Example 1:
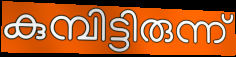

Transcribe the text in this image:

കുമ്പിട്ടിരുന്ന്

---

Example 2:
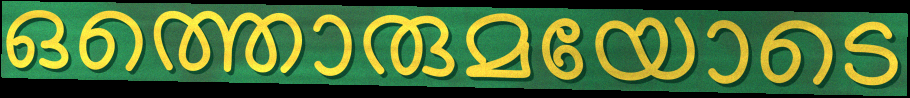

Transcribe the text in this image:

ഒത്തൊരുമയോടെ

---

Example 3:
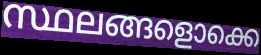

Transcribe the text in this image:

സ്ഥലങ്ങളൊക്കെ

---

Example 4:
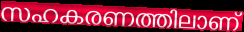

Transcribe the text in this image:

സഹകരണത്തിലാണ്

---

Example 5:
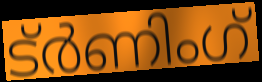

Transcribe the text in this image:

ട്ർണിംഗ്